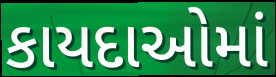
કાયદાઓમાં